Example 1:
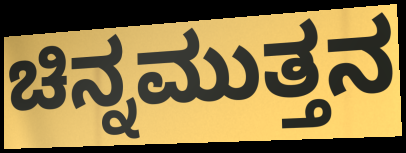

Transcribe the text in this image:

ಚಿನ್ನಮುತ್ತನ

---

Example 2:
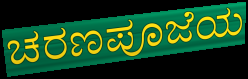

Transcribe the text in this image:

ಚರಣಪೂಜೆಯ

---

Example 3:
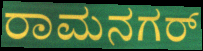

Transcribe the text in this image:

ರಾಮನಗರ್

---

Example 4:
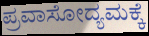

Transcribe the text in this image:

ಪ್ರವಾಸೋದ್ಯಮಕ್ಕೆ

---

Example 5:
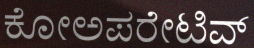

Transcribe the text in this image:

ಕೋಅಪರೇಟಿವ್